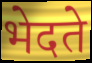
भेदते